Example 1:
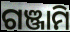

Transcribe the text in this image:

ଗଞ୍ଜାମି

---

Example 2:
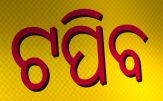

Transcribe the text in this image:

ଟପିବ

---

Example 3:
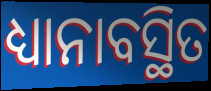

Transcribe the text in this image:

ଧ୍ୟାନାବସ୍ଥିତ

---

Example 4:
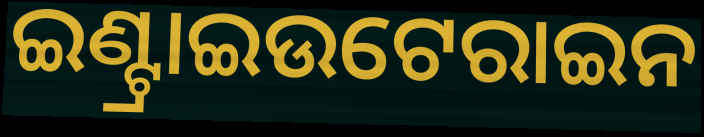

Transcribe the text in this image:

ଇଣ୍ଟ୍ରାଇଉଟେରାଇନ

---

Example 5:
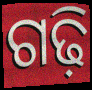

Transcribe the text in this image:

ଗଢ଼ି